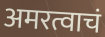
अमरत्वाचं